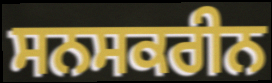
ਸਨਸਕਰੀਨ